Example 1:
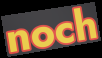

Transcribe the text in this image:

noch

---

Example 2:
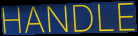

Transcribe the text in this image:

HANDLE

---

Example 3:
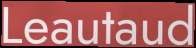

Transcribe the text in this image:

Leautaud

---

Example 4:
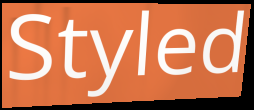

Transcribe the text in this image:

Styled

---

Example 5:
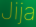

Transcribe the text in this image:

Jija